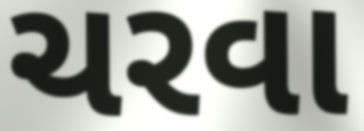
ચરવા